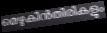
മെഴുകിൻതിരികളും